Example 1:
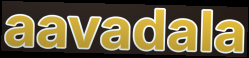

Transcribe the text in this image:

aavadala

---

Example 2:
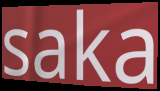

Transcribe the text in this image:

saka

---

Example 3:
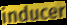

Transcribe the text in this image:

inducer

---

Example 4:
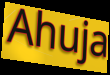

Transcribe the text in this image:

Ahuja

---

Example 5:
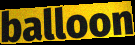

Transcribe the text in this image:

balloon